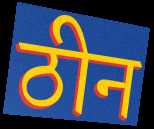
ठीन